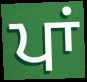
ਪਾਂ